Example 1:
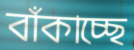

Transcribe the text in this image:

বাঁকাচ্ছে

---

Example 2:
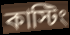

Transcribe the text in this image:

কাস্টিং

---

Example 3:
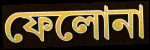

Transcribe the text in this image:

ফেলোনা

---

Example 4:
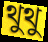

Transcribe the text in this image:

থুথু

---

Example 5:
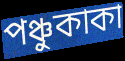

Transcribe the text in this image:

পঞ্চুকাকা